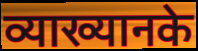
व्याख्यानके